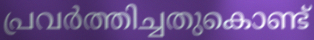
പ്രവർത്തിച്ചതുകൊണ്ട്